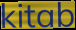
kitab